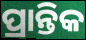
ପ୍ରାନ୍ତିକ